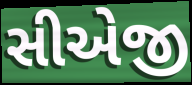
સીએજી